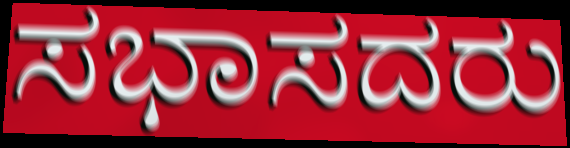
ಸಭಾಸದರು